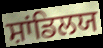
ਸ਼ਾਂਡਿਲਯ